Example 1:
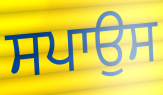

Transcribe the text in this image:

ਸਪਾਉਸ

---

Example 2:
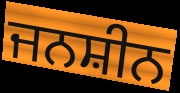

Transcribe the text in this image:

ਜਨਸ਼ੀਨ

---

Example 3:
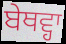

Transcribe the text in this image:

ਬੇਥਵ੍ਹਾ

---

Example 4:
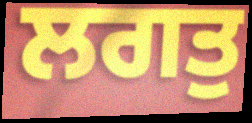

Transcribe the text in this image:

ਲਗਤੁ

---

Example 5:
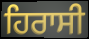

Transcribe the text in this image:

ਹਿਰਾਸੀ